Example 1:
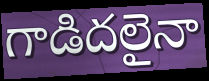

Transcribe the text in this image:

గాడిదలైనా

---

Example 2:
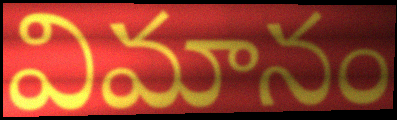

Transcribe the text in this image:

విమానం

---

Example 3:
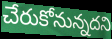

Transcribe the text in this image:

చేరుకోనున్నదని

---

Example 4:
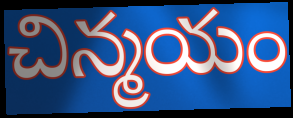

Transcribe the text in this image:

చిన్మయం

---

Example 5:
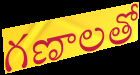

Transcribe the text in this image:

గణాలతో